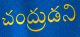
చంద్రుడని